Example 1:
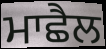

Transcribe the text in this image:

ਮਾਛੈਲ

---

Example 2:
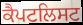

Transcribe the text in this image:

ਕੈਪਟਲਿਸਟ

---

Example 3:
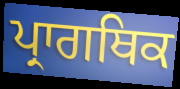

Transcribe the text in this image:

ਪ੍ਰਾਗਥਿਕ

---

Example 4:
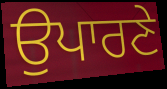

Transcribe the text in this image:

ਉਪਾਰਣੇ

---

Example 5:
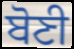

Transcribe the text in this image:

ਬੋਣੀ